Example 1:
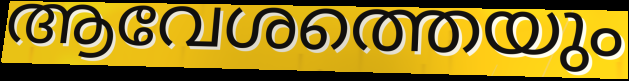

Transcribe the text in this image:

ആവേശത്തെയും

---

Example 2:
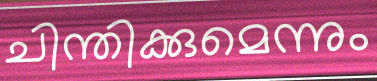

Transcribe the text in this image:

ചിന്തിക്കുമെന്നും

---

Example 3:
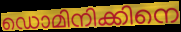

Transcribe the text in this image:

ഡൊമിനിക്കിനെ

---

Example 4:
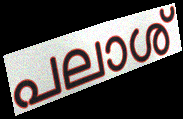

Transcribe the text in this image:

പലാശ്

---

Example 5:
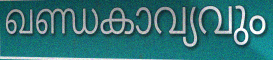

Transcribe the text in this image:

ഖണ്ഡകാവ്യവും